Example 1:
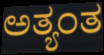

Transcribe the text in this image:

ಅತ್ಯಂತ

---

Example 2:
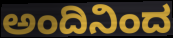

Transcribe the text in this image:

ಅಂದಿನಿಂದ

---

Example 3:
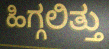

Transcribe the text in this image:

ಹಿಗ್ಗಲಿತ್ತು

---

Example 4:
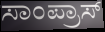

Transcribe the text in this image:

ಸಾಂಪ್ರಾಸ್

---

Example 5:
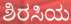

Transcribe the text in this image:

ಶಿರಸಿಯ